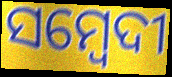
ସମ୍ବେଦୀ